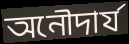
অনৌদার্য